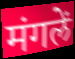
मंगलें